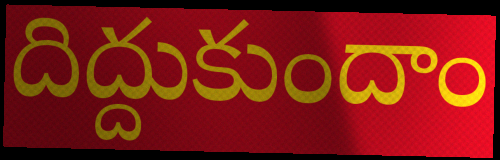
దిద్దుకుందాం